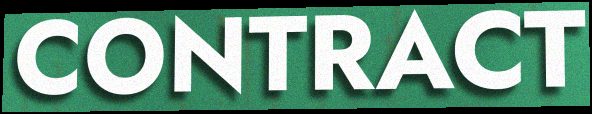
CONTRACT